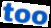
too